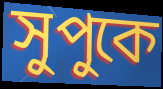
সুপুকে